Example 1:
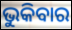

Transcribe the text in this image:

ଭୁକିବାର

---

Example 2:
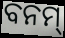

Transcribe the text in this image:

ବନମ୍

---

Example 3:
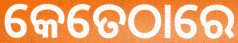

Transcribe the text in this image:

କେତେଠାରେ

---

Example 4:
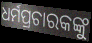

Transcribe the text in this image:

ଧର୍ମପ୍ରଚାରକଙ୍କୁ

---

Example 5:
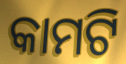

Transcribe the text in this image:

କାମଟି